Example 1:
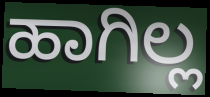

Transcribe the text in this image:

ಹಾಗಿಲ್ಲ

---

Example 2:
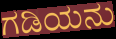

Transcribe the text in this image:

ಗಡಿಯನು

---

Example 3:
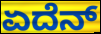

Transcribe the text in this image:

ಏದೆನ್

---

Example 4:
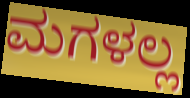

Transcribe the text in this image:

ಮಗಳಲ್ಲ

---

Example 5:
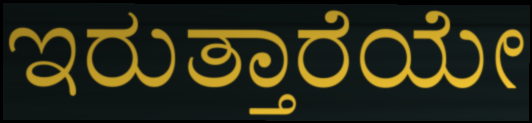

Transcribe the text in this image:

ಇರುತ್ತಾರೆಯೇ